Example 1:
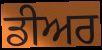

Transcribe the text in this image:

ਡੀਅਰ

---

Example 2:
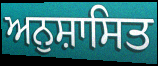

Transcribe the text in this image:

ਅਨੁਸ਼ਾਸਿਤ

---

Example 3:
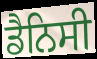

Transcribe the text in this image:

ਡੈਨਿਸੀ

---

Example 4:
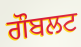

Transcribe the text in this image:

ਗੌਬਲਟ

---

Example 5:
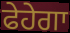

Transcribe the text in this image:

ਫੇਹੇਗਾ